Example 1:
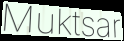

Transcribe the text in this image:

Muktsar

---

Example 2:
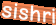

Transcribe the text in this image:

sishri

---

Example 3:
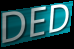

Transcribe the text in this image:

DED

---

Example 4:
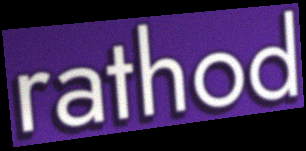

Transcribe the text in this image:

rathod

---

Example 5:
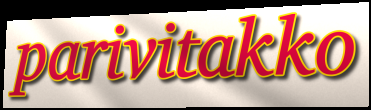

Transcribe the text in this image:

parivitakko